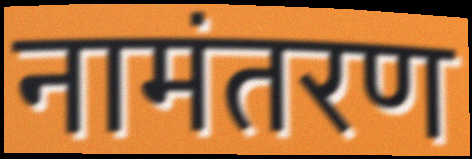
नामंतरण